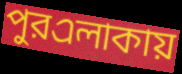
পুরএলাকায়